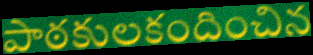
పాఠకులకందించిన